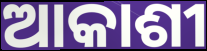
ଆକାଶୀ